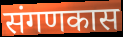
संगणकास